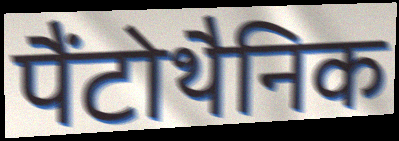
पैंटोथैनिक